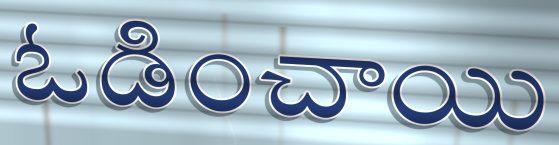
ఓడించాయి